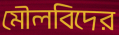
মৌলবিদের